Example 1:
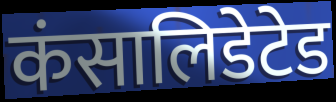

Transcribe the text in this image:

कंसालिडेटेड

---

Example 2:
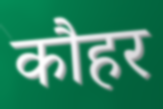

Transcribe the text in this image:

कौहर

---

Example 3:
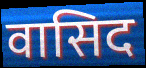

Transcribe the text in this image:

वासिद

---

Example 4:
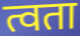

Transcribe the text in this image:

त्वता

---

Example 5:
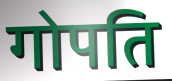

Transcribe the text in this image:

गोपति